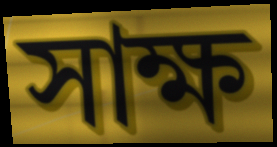
সাক্ষ